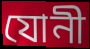
যোনী